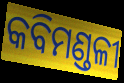
କବିମଣ୍ଡଳୀ